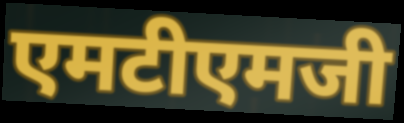
एमटीएमजी